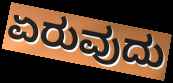
ಏರುವುದು